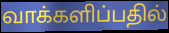
வாக்களிப்பதில்